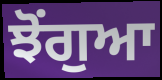
ਝੋਂਗੁਆ